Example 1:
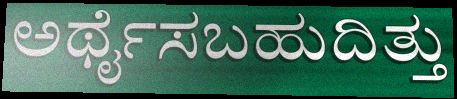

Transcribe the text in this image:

ಅರ್ಥೈಸಬಹುದಿತ್ತು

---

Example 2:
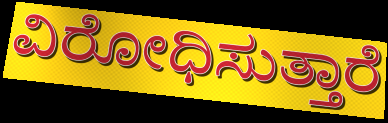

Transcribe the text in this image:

ವಿರೋಧಿಸುತ್ತಾರೆ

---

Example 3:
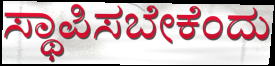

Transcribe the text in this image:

ಸ್ಥಾಪಿಸಬೇಕೆಂದು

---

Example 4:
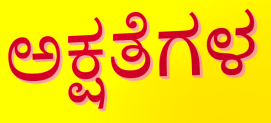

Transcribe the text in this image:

ಅಕ್ಷತೆಗಳ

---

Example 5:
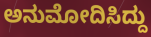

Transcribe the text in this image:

ಅನುಮೋದಿಸಿದ್ದು